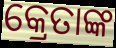
କ୍ରେତାଙ୍କ